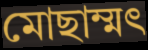
মোছাম্মৎ